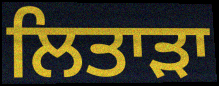
ਲਿਤਾੜਾ